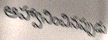
ఆహ్వానించినప్పుడు